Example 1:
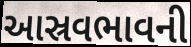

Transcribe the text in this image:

આસ્રવભાવની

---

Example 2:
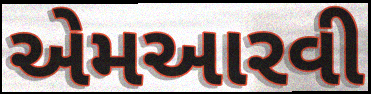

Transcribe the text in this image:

એમઆરવી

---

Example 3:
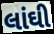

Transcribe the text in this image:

લાંઘી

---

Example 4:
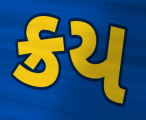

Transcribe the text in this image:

ક્રય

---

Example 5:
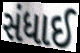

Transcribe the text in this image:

સંધાઈ